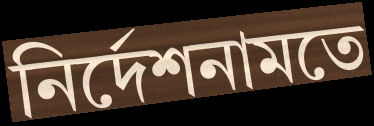
নির্দেশনামতে